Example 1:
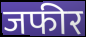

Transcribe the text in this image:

जफीर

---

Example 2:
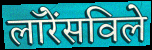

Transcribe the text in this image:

लॉरेंसविले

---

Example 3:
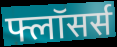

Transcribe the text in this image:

फ्लॉसर्स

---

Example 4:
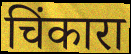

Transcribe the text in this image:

चिंकारा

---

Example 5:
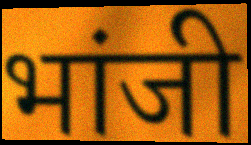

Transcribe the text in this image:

भांजी